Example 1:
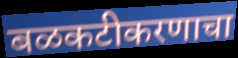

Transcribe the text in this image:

बळकटीकरणाचा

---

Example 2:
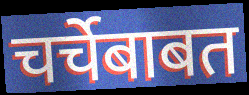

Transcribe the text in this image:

चर्चेबाबत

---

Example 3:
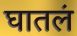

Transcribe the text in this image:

घातलं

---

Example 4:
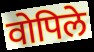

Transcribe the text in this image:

वोपिले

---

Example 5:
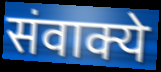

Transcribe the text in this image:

संवाक्ये